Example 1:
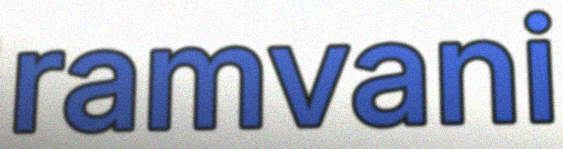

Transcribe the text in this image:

ramvani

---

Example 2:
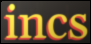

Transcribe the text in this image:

incs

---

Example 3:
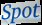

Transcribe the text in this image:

Spot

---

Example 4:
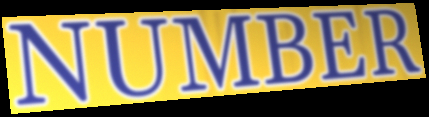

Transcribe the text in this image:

NUMBER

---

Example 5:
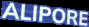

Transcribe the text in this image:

ALIPORE